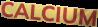
CALCIUM